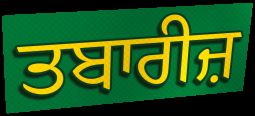
ਤਬਾਰੀਜ਼